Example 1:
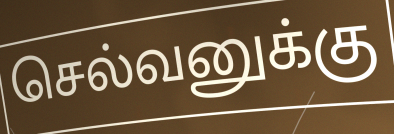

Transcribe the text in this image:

செல்வனுக்கு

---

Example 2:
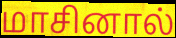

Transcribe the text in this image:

மாசினால்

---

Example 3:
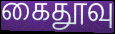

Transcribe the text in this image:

கைதூவு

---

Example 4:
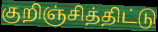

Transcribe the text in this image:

குறிஞ்சித்திட்டு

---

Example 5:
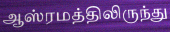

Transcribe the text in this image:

ஆஸ்ரமத்திலிருந்து